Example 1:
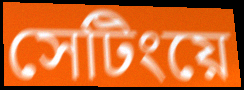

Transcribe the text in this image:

সেটিংয়ে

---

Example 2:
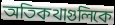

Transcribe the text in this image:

অতিকথাগুলিকে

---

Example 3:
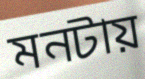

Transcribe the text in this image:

মনটায়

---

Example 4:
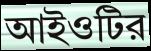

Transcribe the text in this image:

আইওটির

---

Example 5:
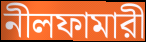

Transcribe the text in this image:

নীলফামারী